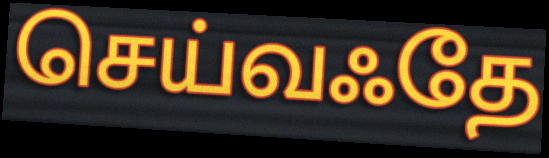
செய்வஃதே